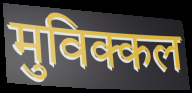
मुविक्कल